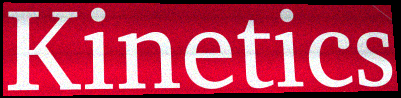
Kinetics